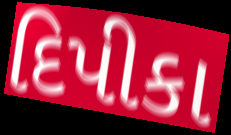
દિપીકા